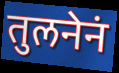
तुलनेनं